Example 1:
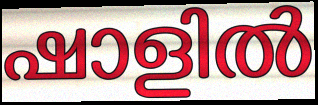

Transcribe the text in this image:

ഷാളിൽ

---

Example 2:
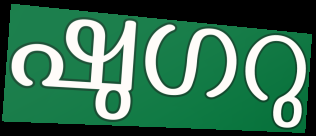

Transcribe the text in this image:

ഷുഗറു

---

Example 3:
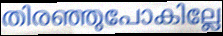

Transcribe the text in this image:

തിരഞ്ഞുപോകില്ലേ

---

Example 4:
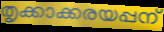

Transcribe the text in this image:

തൃക്കാക്കരയപ്പന്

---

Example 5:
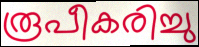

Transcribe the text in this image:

രൂപീകരിച്ചു